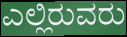
ಎಲ್ಲಿರುವರು